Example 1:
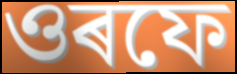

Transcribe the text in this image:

ওৰফে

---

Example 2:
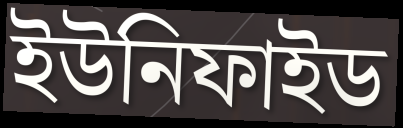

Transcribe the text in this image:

ইউনিফাইড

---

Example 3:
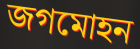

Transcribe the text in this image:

জগমোহন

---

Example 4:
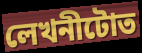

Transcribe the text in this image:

লেখনীটোত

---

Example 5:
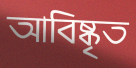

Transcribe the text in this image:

আবিষ্কৃত